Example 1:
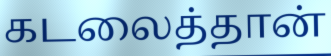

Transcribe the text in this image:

கடலைத்தான்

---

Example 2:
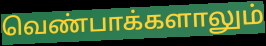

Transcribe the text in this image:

வெண்பாக்களாலும்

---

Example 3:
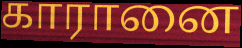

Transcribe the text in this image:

காரானை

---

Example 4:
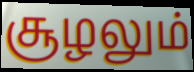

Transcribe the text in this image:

சூழலும்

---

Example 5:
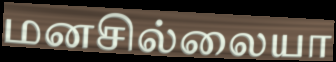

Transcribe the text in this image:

மனசில்லையா